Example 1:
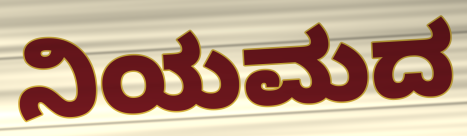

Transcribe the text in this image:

ನಿಯಮದ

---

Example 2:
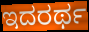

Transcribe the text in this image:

ಇದರರ್ಥ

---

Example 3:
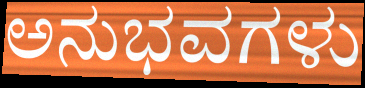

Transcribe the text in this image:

ಅನುಭವಗಳು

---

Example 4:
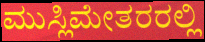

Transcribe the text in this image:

ಮುಸ್ಲಿಮೇತರರಲ್ಲಿ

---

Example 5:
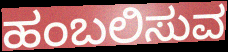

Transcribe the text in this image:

ಹಂಬಲಿಸುವ